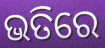
ଭତିରେ